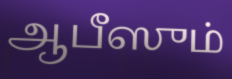
ஆபீஸும்